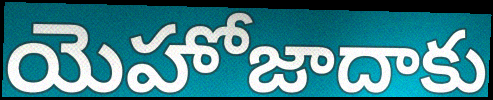
యెహోజాదాకు